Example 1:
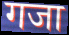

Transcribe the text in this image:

गजा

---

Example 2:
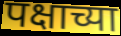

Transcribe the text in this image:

पक्षाच्या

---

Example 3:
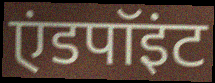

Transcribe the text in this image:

एंडपॉइंट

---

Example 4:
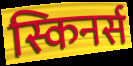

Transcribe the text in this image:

स्किनर्स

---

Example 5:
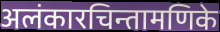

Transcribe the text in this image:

अलंकारचिन्तामणिके